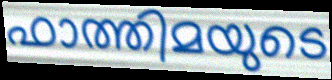
ഫാത്തിമയുടെ